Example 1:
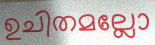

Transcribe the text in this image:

ഉചിതമല്ലോ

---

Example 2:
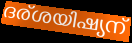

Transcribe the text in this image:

ദര്ശയിഷ്യന്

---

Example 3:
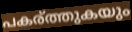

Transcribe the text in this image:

പകര്ത്തുകയും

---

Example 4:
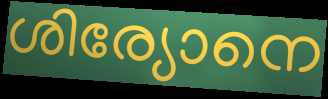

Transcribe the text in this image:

ശിര്യോനെ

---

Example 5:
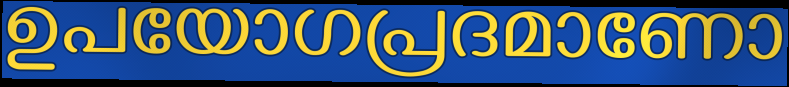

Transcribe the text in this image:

ഉപയോഗപ്രദമാണോ